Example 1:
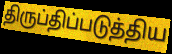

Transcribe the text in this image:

திருப்திப்படுத்திய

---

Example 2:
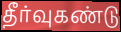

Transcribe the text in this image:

தீர்வுகண்டு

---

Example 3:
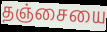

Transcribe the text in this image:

தஞ்சையை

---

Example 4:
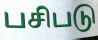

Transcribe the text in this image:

பசிபடு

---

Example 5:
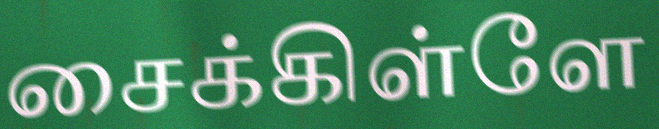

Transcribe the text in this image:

சைக்கிள்ளே